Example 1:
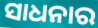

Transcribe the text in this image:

ସାଧନାର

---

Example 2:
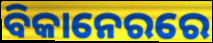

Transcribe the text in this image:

ବିକାନେରରେ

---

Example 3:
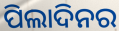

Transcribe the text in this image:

ପିଲାଦିନର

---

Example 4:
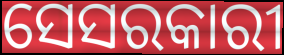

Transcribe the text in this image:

ସେସରକାରୀ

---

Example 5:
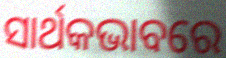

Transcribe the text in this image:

ସାର୍ଥକଭାବରେ